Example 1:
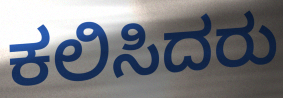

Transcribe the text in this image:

ಕಲಿಸಿದರು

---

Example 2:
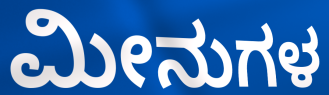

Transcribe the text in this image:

ಮೀನುಗಳ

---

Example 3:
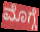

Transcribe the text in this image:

ಮೊಗ್ಗೆ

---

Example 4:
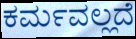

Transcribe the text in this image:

ಕರ್ಮವಲ್ಲದೆ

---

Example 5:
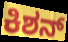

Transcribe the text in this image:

ಕಿಶನ್